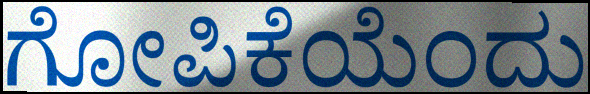
ಗೋಪಿಕೆಯೆಂದು